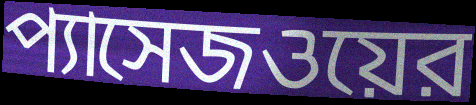
প্যাসেজওয়ের